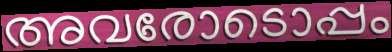
അവരോടൊപ്പം